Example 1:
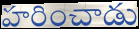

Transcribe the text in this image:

హరించాడు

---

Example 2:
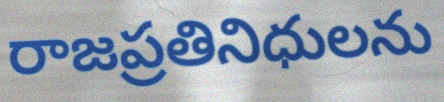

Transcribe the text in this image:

రాజప్రతినిధులను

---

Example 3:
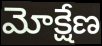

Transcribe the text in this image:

మోక్షేణ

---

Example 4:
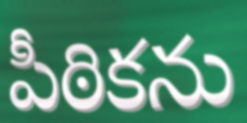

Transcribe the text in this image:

పీఠికను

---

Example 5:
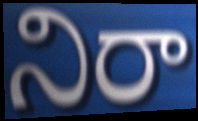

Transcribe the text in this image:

నిరా